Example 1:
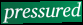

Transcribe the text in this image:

pressured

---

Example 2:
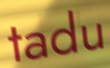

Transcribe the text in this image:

tadu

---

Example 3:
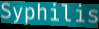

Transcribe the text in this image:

Syphilis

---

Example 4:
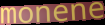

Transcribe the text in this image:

monene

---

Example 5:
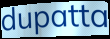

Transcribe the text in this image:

dupatta